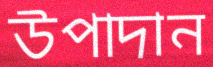
উপাদান